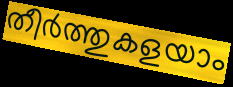
തീർത്തുകളയാം